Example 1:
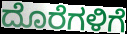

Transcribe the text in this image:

ದೊರೆಗಳಿಗೆ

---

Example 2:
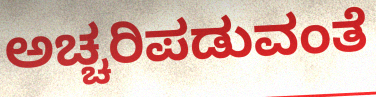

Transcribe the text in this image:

ಅಚ್ಚರಿಪಡುವಂತೆ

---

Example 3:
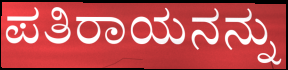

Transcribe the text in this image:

ಪತಿರಾಯನನ್ನು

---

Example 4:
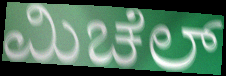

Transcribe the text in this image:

ಮಿಚೆಲ್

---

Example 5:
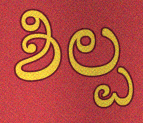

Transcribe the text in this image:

ಶಿಲ್ಪ